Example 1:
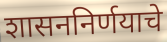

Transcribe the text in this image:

शासननिर्णयाचे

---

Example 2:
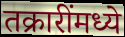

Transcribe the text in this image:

तक्रारींमध्ये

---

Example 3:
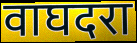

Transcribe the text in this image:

वाघदरा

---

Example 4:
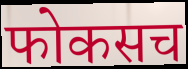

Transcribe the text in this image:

फोकसच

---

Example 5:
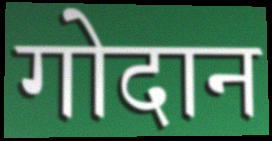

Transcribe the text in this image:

गोदान